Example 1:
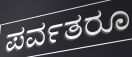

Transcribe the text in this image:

ಪರ್ವತರೂ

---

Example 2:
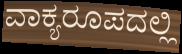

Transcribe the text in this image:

ವಾಕ್ಯರೂಪದಲ್ಲಿ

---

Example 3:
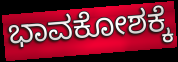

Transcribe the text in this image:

ಭಾವಕೋಶಕ್ಕೆ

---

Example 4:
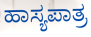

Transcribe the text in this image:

ಹಾಸ್ಯಪಾತ್ರ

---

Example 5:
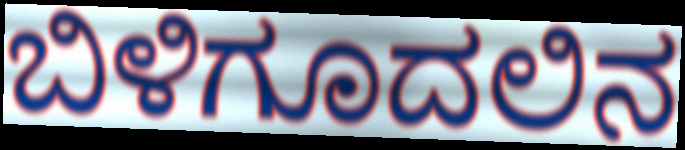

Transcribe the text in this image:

ಬಿಳಿಗೂದಲಿನ